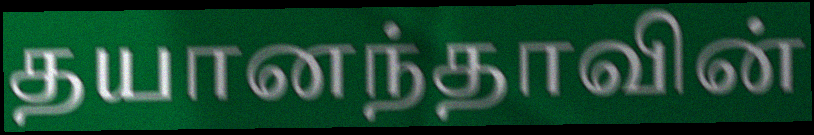
தயானந்தாவின்